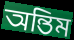
অন্তিম